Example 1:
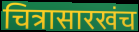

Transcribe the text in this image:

चित्रासारखंच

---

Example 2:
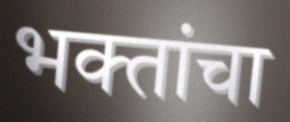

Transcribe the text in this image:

भक्तांचा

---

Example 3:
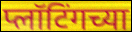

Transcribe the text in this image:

प्लॉटिंगच्या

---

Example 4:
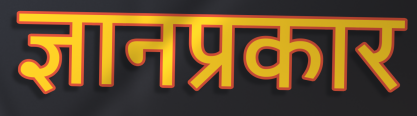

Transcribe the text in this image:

ज्ञानप्रकार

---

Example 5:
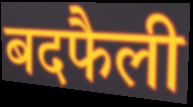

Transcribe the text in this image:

बदफैली